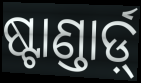
ଷ୍ଟାଣ୍ଡାର୍ଡ଼୍